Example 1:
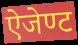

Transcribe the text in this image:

ऐजेण्ट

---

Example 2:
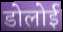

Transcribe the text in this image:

डोलोई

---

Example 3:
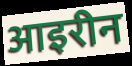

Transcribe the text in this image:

आइरीन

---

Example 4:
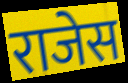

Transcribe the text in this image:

राजेस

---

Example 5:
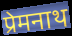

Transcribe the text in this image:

प्रेमनाथ